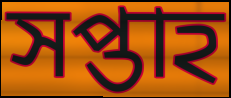
সপ্তাহ